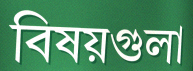
বিষয়গুলা